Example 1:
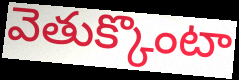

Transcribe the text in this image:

వెతుక్కొంటా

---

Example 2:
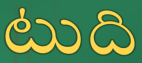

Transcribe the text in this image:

టుది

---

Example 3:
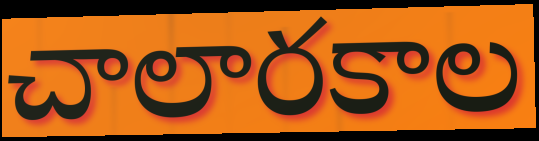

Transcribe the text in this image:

చాలారకాల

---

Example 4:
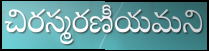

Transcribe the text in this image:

చిరస్మరణీయమని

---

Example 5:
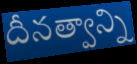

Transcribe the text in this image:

దీనత్వాన్ని